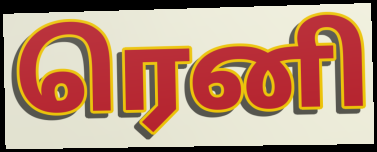
ரெனி